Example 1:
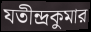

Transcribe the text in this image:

যতীন্দ্রকুমার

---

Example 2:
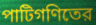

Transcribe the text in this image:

পাটিগণিতের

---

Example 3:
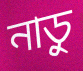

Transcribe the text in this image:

নাডু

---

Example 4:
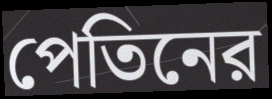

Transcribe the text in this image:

পেতিনের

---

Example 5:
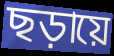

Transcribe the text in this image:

ছড়ায়ে